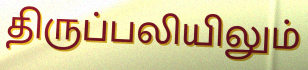
திருப்பலியிலும்